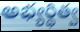
అభ్యర్థిత్వ